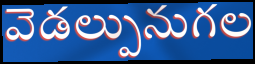
వెడల్పునుగల